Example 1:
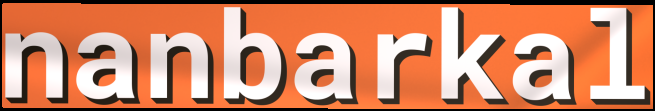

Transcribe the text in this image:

nanbarkal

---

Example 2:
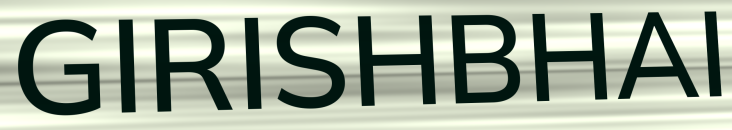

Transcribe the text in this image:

GIRISHBHAI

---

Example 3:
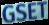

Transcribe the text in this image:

GSET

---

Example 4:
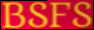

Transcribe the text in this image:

BSFS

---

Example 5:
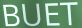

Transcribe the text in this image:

BUET